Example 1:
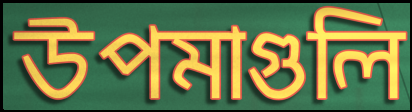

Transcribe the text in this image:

উপমাগুলি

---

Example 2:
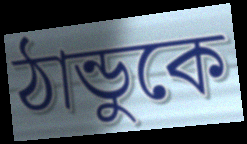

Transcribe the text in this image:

ঠান্ডুকে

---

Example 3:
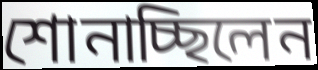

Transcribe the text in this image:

শোনাচ্ছিলেন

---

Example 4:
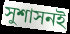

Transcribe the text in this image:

সুশাসনই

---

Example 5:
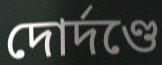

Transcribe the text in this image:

দোর্দণ্ডে